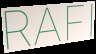
RAFI